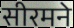
सीरमने